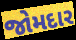
જોમદાર